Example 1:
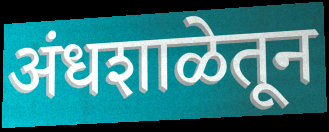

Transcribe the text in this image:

अंधशाळेतून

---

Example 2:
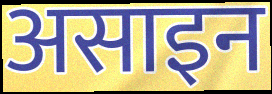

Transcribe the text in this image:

असाइन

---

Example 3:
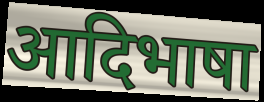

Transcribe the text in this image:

आदिभाषा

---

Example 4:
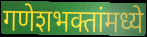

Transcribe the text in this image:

गणेशभक्तांमध्ये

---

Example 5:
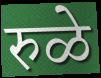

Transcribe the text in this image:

रुळे